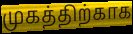
முகத்திற்காக